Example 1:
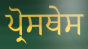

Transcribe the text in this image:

ਪ੍ਰੋਸਥੇਸ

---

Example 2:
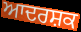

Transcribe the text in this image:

ਆਦਰਸ਼ਕ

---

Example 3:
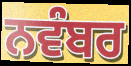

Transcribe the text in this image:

ਨਵੰਬਰ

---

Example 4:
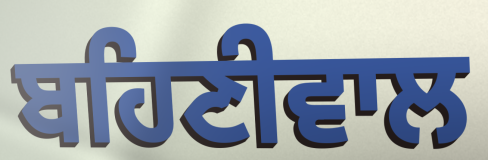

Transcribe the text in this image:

ਬਹਿਣੀਵਾਲ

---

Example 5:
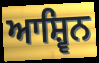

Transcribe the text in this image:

ਆਸ਼੍ਵਿਨ